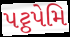
પટ્ઠપેમિ